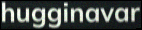
hugginavar